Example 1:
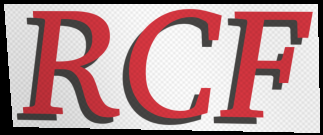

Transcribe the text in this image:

RCF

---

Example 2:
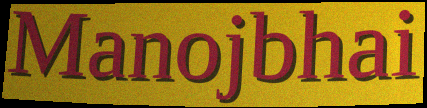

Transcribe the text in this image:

Manojbhai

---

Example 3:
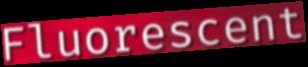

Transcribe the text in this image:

Fluorescent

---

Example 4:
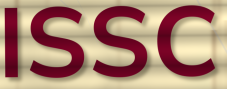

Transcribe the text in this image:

ISSC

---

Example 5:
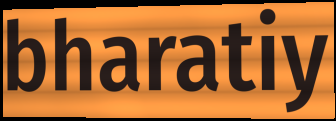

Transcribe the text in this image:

bharatiy